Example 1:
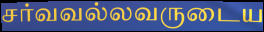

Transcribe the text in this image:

சர்வவல்லவருடைய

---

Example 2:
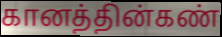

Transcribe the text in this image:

கானத்தின்கண்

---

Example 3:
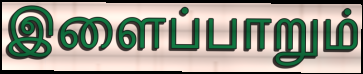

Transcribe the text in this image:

இளைப்பாறும்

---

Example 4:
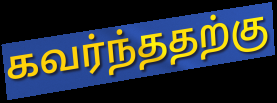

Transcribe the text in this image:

கவர்ந்ததற்கு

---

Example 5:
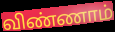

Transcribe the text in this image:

விண்ணாம்